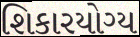
શિકારયોગ્ય